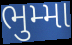
ભુમ્મા